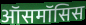
ऑसमॉसिस